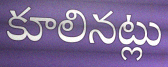
కూలినట్లు